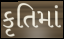
કૃતિમાં